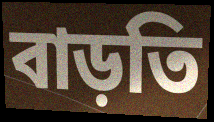
বাড়তি